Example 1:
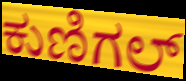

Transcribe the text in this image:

ಕುಣಿಗಲ್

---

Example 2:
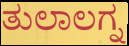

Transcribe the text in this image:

ತುಲಾಲಗ್ನ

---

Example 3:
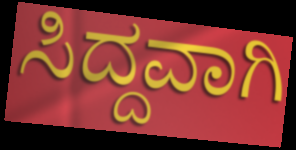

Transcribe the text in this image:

ಸಿದ್ದವಾಗಿ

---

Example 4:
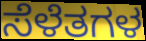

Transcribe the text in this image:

ಸೆಳೆತಗಳ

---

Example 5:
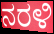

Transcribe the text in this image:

ನರಳಿ